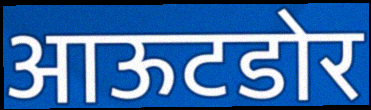
आऊटडोर